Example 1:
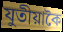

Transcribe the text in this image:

যুতীয়াকৈ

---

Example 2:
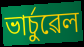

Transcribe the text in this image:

ভাৰ্চুৱেল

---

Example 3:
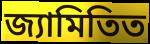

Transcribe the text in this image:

জ্যামিতিত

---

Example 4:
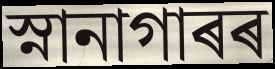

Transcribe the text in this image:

স্নানাগাৰৰ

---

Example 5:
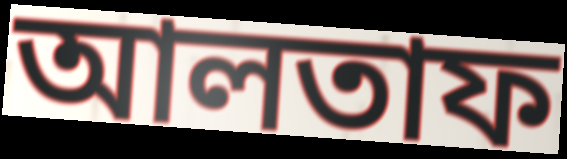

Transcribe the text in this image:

আলতাফ